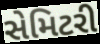
સેમિટરી